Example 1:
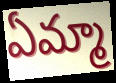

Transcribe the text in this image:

ఏమ్మా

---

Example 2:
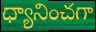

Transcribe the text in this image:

ధ్యానించగా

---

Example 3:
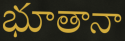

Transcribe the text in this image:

భూతానా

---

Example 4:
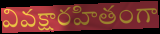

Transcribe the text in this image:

వివక్షారహితంగా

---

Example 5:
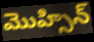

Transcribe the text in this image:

మొహ్సిన్